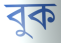
বুক